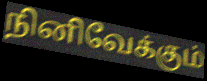
நினிவேக்கும்